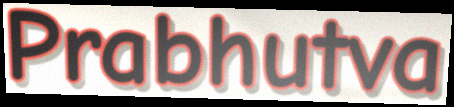
Prabhutva